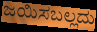
ಜಯಿಸಬಲ್ಲದು